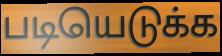
படியெடுக்க